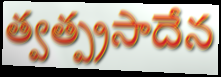
త్వత్ప్రసాదేన